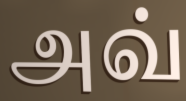
அவ்